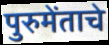
पुरुमेंताचे